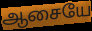
ஆசையே